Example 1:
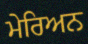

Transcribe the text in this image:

ਮੇਰਿਅਨ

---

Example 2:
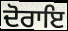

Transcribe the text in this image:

ਦੋਰਾਇ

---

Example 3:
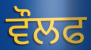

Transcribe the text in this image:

ਵੌਲਫ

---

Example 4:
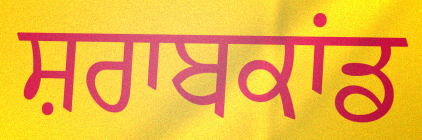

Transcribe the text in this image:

ਸ਼ਰਾਬਕਾਂਡ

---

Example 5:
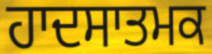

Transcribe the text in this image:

ਹਾਦਸਾਤਮਕ